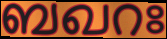
ബഖറഃ